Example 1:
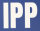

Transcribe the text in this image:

IPP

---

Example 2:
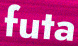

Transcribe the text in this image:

futa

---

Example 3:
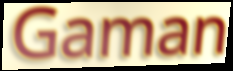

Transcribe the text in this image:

Gaman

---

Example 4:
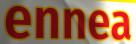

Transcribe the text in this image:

ennea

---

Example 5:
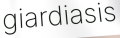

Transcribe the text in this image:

giardiasis